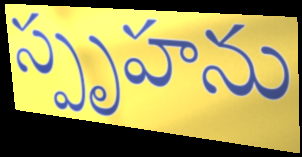
స్పృహను